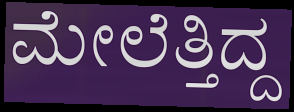
ಮೇಲೆತ್ತಿದ್ದ